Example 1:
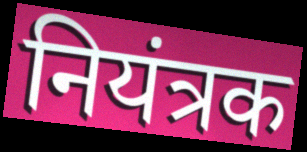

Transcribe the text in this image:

नियंत्रक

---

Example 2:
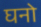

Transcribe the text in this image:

घनो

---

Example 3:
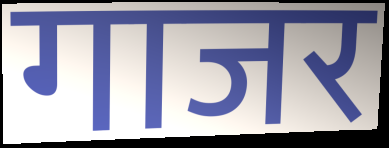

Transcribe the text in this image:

गाजर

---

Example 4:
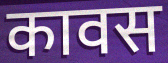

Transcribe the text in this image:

कावस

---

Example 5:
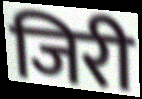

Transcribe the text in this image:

जिरी